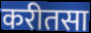
करीतसा